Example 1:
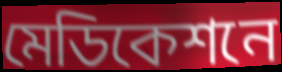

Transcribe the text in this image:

মেডিকেশনে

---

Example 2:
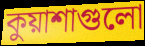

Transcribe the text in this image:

কুয়াশাগুলো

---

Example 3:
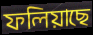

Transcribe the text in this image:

ফলিয়াছে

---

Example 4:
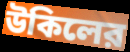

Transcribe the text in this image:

উকিলের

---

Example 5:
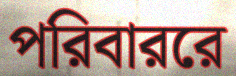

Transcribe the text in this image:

পরিবাররে